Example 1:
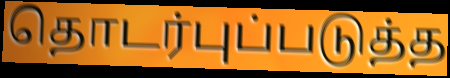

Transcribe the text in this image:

தொடர்புப்படுத்த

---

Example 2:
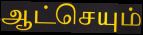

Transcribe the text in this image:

ஆட்செயும்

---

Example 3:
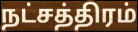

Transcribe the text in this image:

நட்சத்திரம்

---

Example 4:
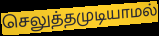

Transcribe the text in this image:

செலுத்தமுடியாமல்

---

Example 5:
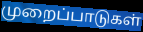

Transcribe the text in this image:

முறைப்பாடுகள்